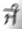
ਜੰ